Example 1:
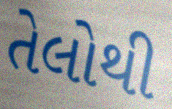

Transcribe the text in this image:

તેલોથી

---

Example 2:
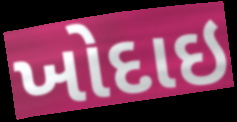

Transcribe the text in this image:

ખોદાઇ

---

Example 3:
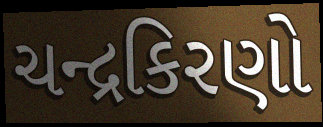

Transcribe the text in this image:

ચન્દ્રકિરણો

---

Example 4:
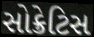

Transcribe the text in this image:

સોક્રેટિસ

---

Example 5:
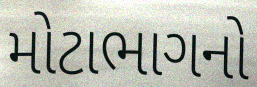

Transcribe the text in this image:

મોટાભાગનો